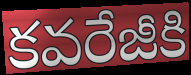
కవరేజీకి